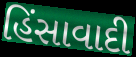
હિંસાવાદી